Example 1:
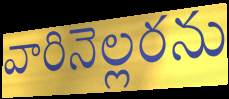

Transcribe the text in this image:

వారినెల్లరను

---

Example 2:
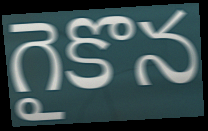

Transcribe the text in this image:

గైకొన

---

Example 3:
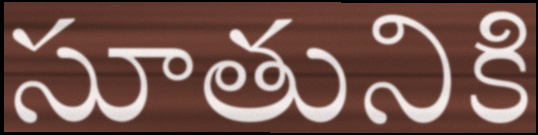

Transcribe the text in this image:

సూతునికి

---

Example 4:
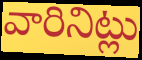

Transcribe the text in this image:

వారినిట్లు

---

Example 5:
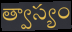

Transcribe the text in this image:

త్వాస్యం